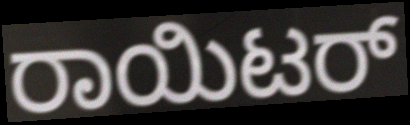
ರಾಯಿಟರ್